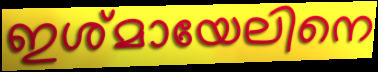
ഇശ്മായേലിനെ